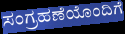
ಸಂಗ್ರಹಣೆಯೊಂದಿಗೆ